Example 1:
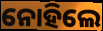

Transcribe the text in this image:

ନୋହିଲେ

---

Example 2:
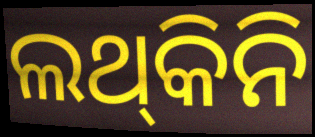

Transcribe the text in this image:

ଲଥ୍‌କିନି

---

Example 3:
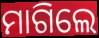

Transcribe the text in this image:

ମାଗିଲେ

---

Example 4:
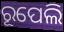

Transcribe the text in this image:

ରୂପେଲି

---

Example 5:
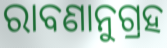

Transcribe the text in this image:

ରାବଣାନୁଗ୍ରହ